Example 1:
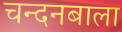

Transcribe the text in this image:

चन्दनबाला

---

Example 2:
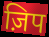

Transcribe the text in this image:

ज़िप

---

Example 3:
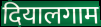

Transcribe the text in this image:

दियालगाम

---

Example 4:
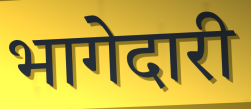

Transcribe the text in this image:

भागेदारी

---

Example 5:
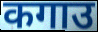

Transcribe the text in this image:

कगाउ